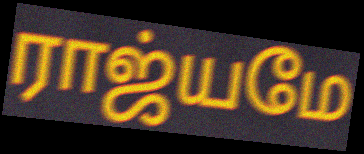
ராஜ்யமே